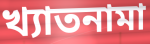
খ্যাতনামা